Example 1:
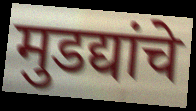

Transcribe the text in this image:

मुडद्यांचे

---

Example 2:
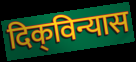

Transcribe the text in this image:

दिक्‌विन्यास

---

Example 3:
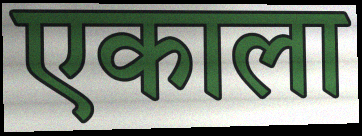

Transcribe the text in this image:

एकाला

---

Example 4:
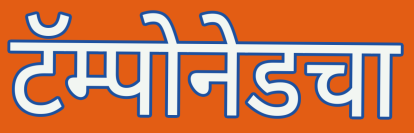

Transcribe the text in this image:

टॅम्पोनेडचा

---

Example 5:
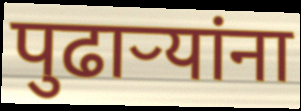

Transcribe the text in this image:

पुढाऱ्यांना